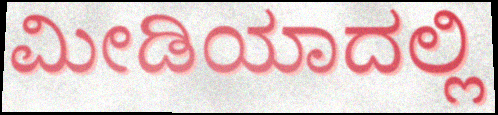
ಮೀಡಿಯಾದಲ್ಲಿ